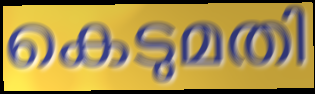
കെടുമതി